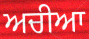
ਅਚੀਆ